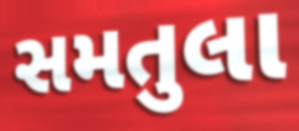
સમતુલા